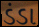
ડંડા